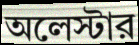
অলেস্টার